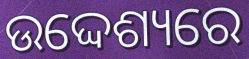
ଉଦ୍ଦେଶ୍ୟରେ